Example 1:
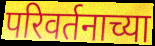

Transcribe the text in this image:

परिवर्तनाच्या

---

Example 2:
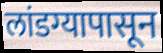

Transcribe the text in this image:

लांडग्यापासून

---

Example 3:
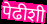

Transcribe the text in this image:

पेढीशी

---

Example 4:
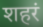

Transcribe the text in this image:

शहरं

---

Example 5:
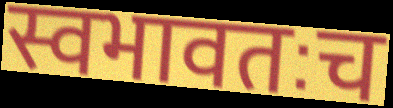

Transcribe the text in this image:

स्वभावतःच